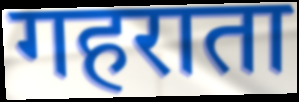
गहराता